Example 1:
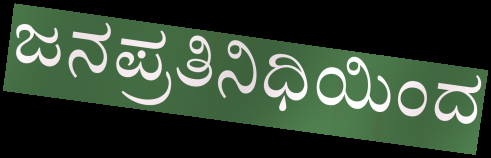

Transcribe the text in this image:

ಜನಪ್ರತಿನಿಧಿಯಿಂದ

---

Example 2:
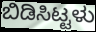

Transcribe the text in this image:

ಬಿಡಿಸಿಟ್ಟಳು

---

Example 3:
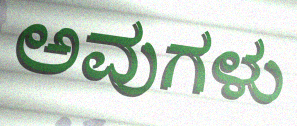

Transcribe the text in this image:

ಅವುಗಳು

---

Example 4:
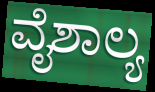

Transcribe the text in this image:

ವೈಶಾಲ್ಯ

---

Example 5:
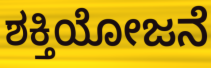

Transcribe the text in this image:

ಶಕ್ತಿಯೋಜನೆ